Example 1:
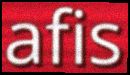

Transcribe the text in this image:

afis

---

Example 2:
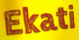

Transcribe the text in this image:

Ekati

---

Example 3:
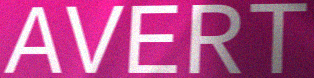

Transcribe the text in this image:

AVERT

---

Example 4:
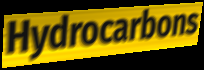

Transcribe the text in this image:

Hydrocarbons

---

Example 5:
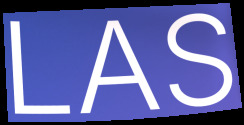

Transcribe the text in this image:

LAS